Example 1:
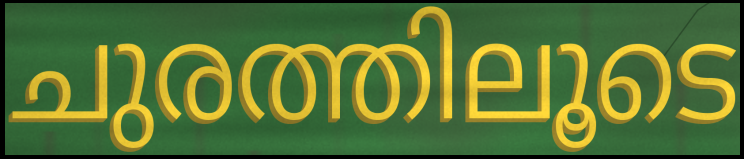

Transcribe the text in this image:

ചുരത്തിലൂടെ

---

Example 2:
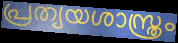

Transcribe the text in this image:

പ്രത്യയശാസ്ത്രം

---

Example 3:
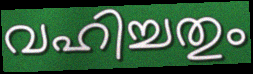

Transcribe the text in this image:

വഹിച്ചതും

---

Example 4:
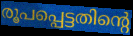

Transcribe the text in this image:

രൂപപ്പെട്ടതിന്റെ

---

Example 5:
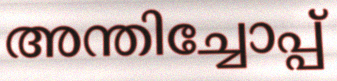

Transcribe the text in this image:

അന്തിച്ചോപ്പ്